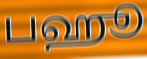
பஹூ